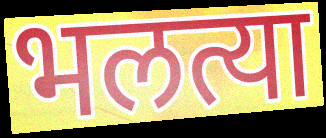
भलत्या